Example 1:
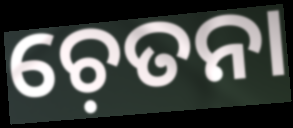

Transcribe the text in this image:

ଚ଼େତନା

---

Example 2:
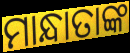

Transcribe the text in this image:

ମାନ୍ଧାତାଙ୍କ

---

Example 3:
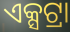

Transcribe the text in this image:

ଏକ୍ସଟ୍ରା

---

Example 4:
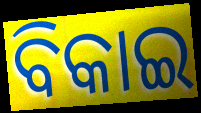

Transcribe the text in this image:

ବିକାଇ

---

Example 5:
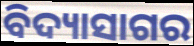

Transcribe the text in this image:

ବିଦ୍ୟାସାଗର